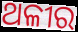
ଥଳୀର